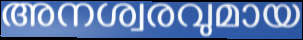
അനശ്വരവുമായ